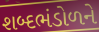
શબ્દભંડોળને